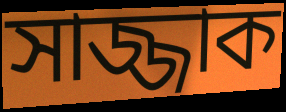
সাজ্জাক